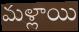
మళ్లాయి